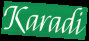
Karadi